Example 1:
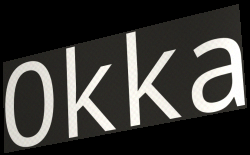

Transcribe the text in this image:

Okka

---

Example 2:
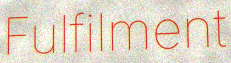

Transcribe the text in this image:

Fulfilment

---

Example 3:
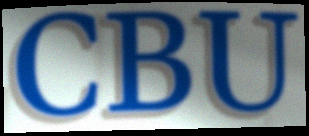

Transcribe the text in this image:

CBU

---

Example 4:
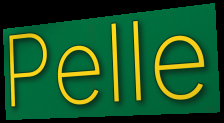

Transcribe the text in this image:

Pelle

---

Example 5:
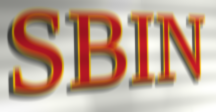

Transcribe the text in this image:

SBIN